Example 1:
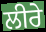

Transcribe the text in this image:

ਲੀਰੇ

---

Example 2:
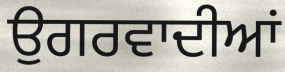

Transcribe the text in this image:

ਉਗਰਵਾਦੀਆਂ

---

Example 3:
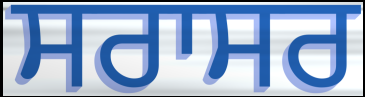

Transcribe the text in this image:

ਸਰਾਸਰ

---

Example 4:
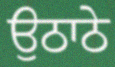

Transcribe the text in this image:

ਉਠਾਠੇ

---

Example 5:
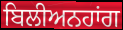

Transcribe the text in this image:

ਬਿਲੀਅਨਹਾਂਗ